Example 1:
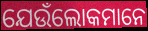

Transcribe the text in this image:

ଯେଉଁଲୋକମାନେ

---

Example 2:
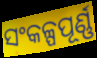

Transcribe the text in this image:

ସଂକଳ୍ପପୂର୍ଣ୍ଣ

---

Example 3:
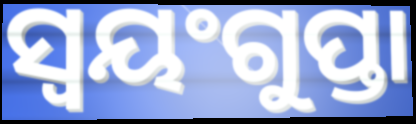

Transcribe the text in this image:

ସ୍ୱୟଂଗୁପ୍ତା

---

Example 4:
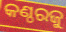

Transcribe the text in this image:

କଣ୍ଠରଜୁ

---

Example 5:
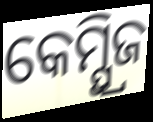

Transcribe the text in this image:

କେମ୍ପ୍ୱ୍ରିଜ